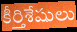
కీర్తిశేషులు